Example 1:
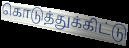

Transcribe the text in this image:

கொடுத்துக்கிட்டு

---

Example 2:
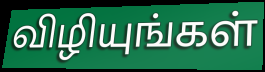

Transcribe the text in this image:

விழியுங்கள்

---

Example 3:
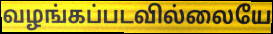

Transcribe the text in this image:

வழங்கப்படவில்லையே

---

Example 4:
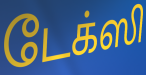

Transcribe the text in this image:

டேக்ஸி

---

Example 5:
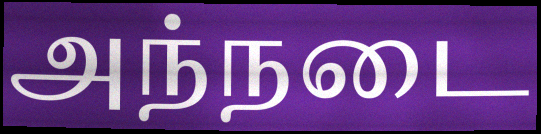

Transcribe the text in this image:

அந்நடை